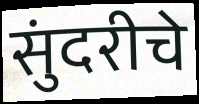
सुंदरीचे